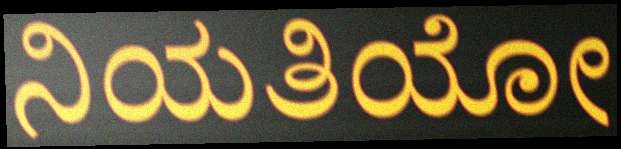
ನಿಯತಿಯೋ